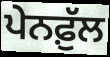
ਪੇਨਫ਼ੁੱਲ